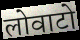
लोवाटो